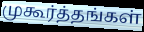
முகூர்த்தங்கள்